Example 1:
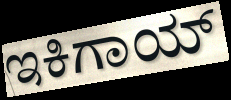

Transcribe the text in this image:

ಇಕಿಗಾಯ್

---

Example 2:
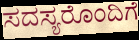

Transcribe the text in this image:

ಸದಸ್ಯರೊಂದಿಗೆ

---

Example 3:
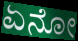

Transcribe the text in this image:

ಏನೋ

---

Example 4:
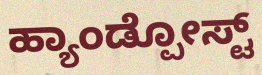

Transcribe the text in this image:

ಹ್ಯಾಂಡ್ಪೋಸ್ಟ್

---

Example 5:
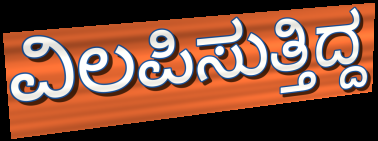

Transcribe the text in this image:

ವಿಲಪಿಸುತ್ತಿದ್ದ